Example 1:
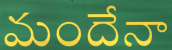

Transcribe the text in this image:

మందేనా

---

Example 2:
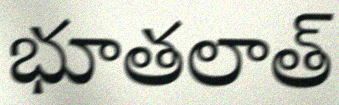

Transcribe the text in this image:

భూతలాత్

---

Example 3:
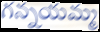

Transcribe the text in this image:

గన్నయమ్మ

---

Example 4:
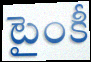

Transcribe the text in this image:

టైంకీ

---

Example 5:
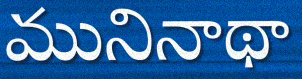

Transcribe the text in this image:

మునినాథా